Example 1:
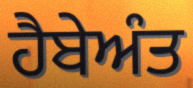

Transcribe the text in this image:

ਹੈਬੇਅੰਤ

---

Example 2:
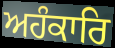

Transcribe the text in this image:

ਅਹੰਕਾਰਿ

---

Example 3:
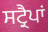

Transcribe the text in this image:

ਸਟ੍ਰੈਪਾਂ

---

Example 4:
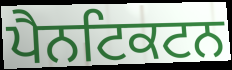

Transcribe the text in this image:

ਪੈਨਟਿਕਟਨ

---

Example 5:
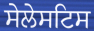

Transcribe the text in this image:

ਸੇਲੇਸਟਿਸ